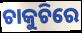
ଚାକୁଚିରେ